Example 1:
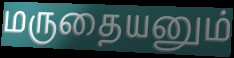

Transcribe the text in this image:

மருதையனும்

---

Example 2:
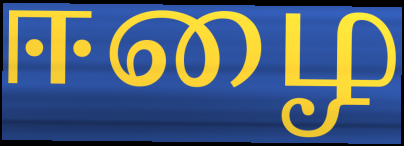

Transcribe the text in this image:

ஈழை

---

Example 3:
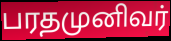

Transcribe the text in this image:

பரதமுனிவர்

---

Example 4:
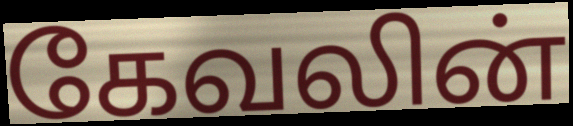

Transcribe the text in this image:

கேவலின்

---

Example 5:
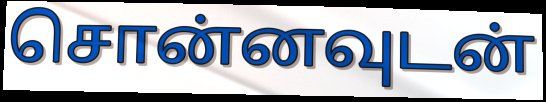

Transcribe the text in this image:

சொன்னவுடன்